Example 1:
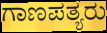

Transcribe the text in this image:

ಗಾಣಪತ್ಯರು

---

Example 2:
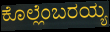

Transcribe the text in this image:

ಕೊಲ್ಲೆಂಬರಯ್ಯ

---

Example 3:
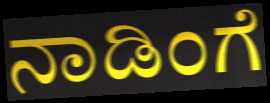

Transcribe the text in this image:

ನಾಡಿಂಗೆ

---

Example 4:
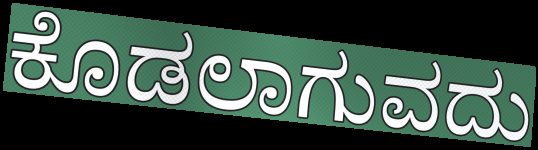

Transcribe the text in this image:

ಕೊಡಲಾಗುವದು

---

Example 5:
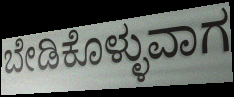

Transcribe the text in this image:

ಬೇಡಿಕೊಳ್ಳುವಾಗ